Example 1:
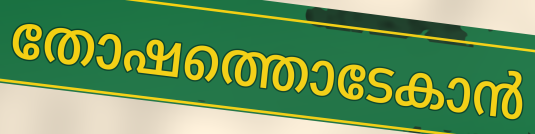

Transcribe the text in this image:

തോഷത്തൊടേകാൻ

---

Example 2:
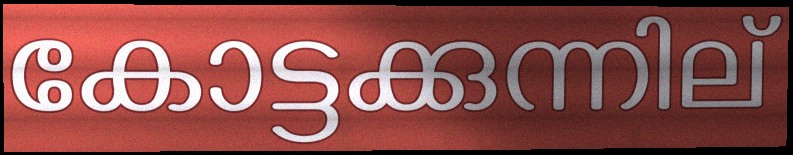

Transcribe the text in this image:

കോട്ടക്കുന്നില്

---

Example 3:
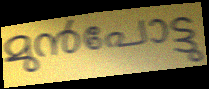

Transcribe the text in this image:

മുൻപോട്ടു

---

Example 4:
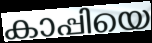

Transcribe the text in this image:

കാപ്പിയെ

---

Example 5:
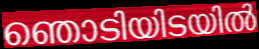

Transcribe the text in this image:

ഞൊടിയിടയിൽ